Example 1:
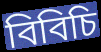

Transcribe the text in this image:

বিবিচি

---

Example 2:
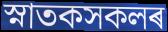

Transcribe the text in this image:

স্নাতকসকলৰ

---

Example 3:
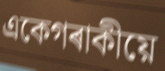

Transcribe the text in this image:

একেগৰাকীয়ে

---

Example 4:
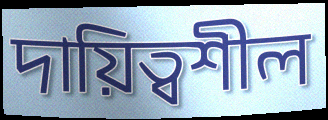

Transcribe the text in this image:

দায়িত্বশীল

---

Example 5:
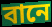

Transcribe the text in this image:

বানে